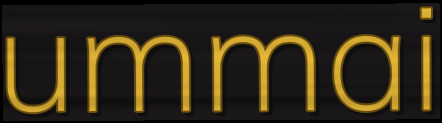
ummai